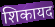
शिकायद